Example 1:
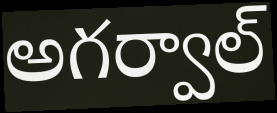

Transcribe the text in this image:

అగర్వాల్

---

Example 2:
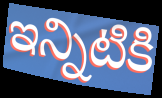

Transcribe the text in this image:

ఇన్నిటికి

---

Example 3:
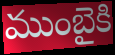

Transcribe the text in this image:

ముంబైకి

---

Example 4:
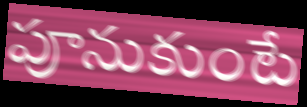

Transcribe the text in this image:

పూనుకుంటే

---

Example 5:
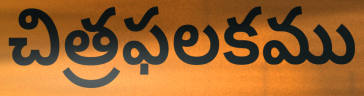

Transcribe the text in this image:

చిత్రఫలకము